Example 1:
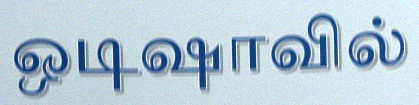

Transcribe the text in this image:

ஒடிஷாவில்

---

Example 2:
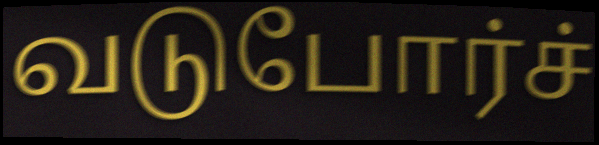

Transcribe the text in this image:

வடுபோர்ச்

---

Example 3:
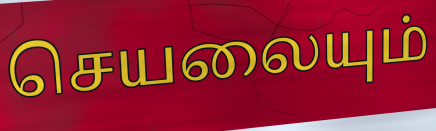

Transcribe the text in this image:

செயலையும்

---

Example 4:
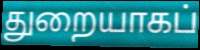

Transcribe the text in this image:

துறையாகப்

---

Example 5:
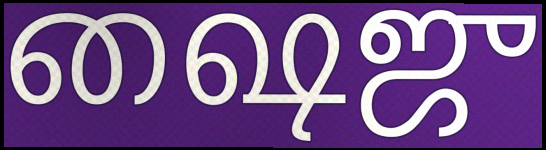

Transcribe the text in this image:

ஷைஜு